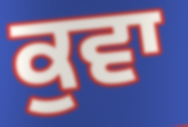
ਕੁਵਾ